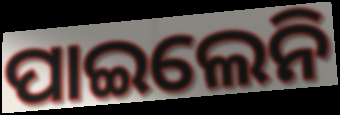
ପାଇଲେନି